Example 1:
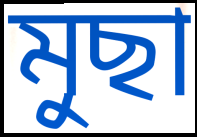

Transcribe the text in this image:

মুছা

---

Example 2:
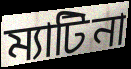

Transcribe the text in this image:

ম্যাটিনা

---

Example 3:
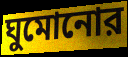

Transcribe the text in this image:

ঘুমোনোর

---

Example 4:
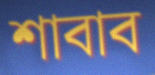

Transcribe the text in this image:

শাবাব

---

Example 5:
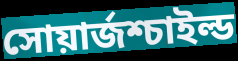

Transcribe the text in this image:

সোয়ার্জশ্চাইল্ড